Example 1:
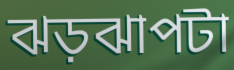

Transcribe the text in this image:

ঝড়ঝাপটা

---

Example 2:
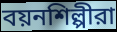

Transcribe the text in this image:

বয়নশিল্পীরা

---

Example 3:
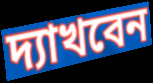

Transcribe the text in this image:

দ্যাখবেন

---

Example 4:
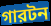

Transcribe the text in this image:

গারটন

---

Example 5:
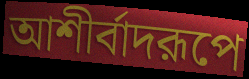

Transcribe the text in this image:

আশীর্বাদরূপে